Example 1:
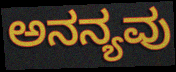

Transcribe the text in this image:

ಅನನ್ಯವು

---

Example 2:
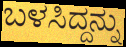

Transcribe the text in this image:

ಬಳಸಿದ್ದನ್ನು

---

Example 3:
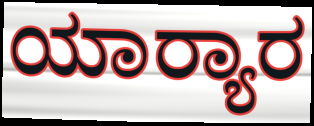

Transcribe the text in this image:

ಯಾರ‍್ಯಾರ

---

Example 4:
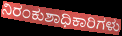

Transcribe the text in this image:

ನಿರಂಕುಶಾಧಿಕಾರಿಗಳು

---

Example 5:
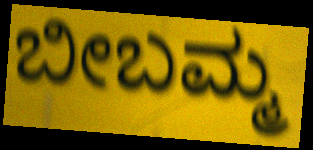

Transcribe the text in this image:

ಬೀಬಮ್ಮ